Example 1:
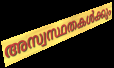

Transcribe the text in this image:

അസ്വസ്ഥതകൾക്കും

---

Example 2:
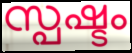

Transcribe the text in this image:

സ്പഷ്ടം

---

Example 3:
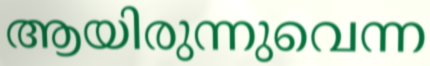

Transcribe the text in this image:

ആയിരുന്നുവെന്ന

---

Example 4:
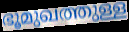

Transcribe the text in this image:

ഭൂമുഖത്തുള്ള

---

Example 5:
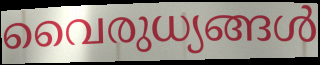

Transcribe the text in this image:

വൈരുധ്യങ്ങൾ